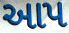
આપ